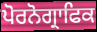
ਪੋਰਨੋਗ੍ਰਾਫਿਕ